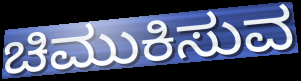
ಚಿಮುಕಿಸುವ